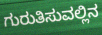
ಗುರುತಿಸುವಲ್ಲಿನ